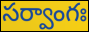
సర్వాంగః